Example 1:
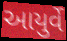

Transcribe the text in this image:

આયુર્વે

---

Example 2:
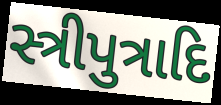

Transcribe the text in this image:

સ્ત્રીપુત્રાદિ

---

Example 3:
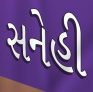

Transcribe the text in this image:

સનેહી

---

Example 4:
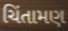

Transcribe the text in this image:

ચિંતામણ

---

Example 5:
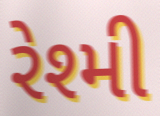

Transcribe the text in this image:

રેશ્મી